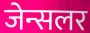
जेन्सलर